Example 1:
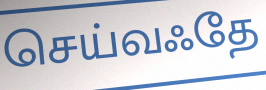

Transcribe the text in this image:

செய்வஃதே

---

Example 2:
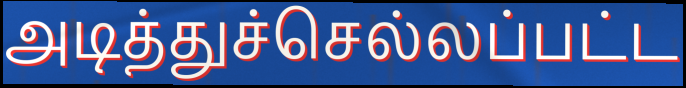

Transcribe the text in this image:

அடித்துச்செல்லப்பட்ட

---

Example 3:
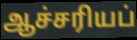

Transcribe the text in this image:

ஆச்சரியப்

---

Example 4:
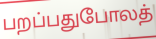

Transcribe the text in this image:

பறப்பதுபோலத்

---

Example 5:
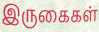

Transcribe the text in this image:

இருகைகள்